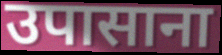
उपासाना